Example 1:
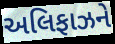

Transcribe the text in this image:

અલિફાઝને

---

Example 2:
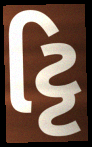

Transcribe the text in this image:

ટ્ટિ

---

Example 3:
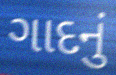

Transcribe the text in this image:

ગાદનું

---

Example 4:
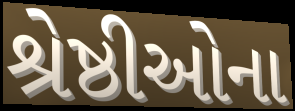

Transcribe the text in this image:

શ્રેષ્ઠીઓના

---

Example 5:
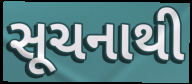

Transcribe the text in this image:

સૂચનાથી